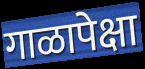
गाळापेक्षा